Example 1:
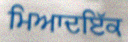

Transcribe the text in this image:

ਮਿਆਦਇੱਕ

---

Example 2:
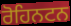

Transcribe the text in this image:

ਰੋਹਿਨਟਨ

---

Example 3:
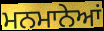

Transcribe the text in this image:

ਮਨਮਾਨੇਆਂ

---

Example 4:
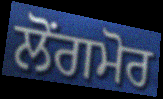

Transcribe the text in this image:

ਲੋਂਗਮੋਰ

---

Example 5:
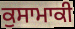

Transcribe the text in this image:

ਕੁਸਾਮਾਕੀ